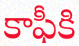
కాఫీకి